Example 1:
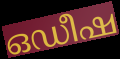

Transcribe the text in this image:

ഒഡീഷ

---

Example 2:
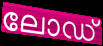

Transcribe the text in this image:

ലോഡ്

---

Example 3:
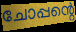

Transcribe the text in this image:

ചോപ്പന്റെ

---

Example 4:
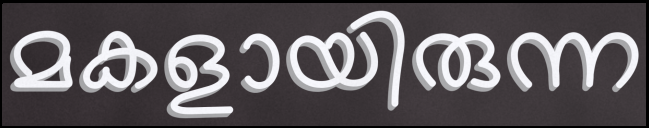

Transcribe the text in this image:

മകളായിരുന്ന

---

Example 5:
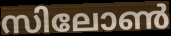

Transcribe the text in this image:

സിലോൺ